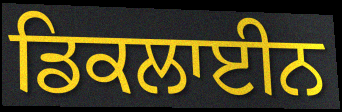
ਡਿਕਲਾਈਨ